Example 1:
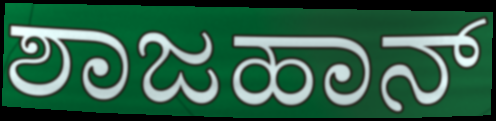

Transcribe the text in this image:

ಶಾಜಹಾನ್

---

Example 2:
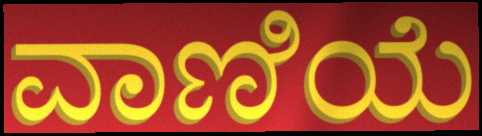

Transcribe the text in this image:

ವಾಣಿಯೆ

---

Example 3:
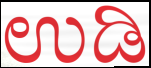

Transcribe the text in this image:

ಉಡಿ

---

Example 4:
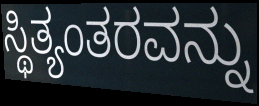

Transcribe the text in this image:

ಸ್ಥಿತ್ಯಂತರವನ್ನು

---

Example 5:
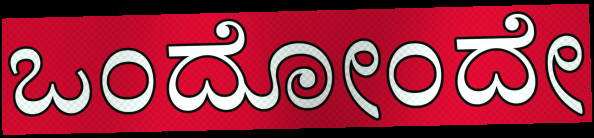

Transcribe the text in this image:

ಒಂದೋಂದೇ